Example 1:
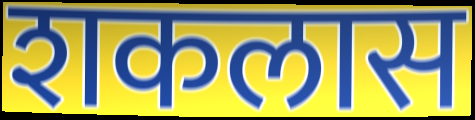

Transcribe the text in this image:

शकलास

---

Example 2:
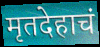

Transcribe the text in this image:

मृतदेहाचं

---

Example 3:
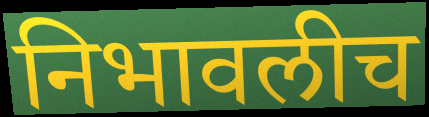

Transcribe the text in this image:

निभावलीच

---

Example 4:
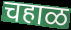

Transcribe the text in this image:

चहाळ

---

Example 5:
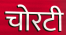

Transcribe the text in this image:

चोरटी